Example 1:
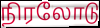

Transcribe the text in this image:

நிரலோடு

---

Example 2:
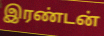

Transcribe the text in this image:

இரண்டன்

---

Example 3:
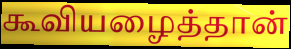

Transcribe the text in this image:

கூவியழைத்தான்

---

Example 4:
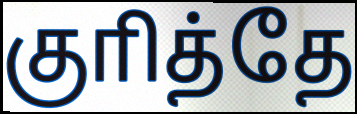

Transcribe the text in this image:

குரித்தே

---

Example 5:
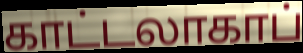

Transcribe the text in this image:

காட்டலாகாப்